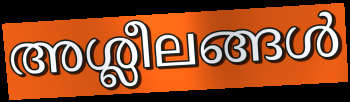
അശ്ലീലങ്ങൾ